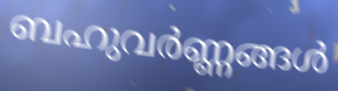
ബഹുവർണ്ണങ്ങൾ